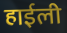
हाईली